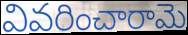
వివరించారామె